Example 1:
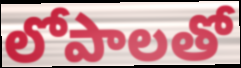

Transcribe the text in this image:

లోపాలతో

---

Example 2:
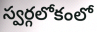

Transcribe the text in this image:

స్వర్గలోకంలో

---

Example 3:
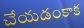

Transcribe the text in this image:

చేయడంకాక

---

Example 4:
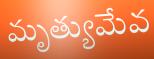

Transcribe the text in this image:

మృత్యుమేవ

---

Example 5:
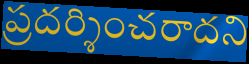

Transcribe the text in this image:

ప్రదర్శించరాదని